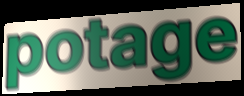
potage